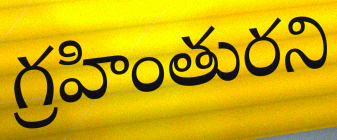
గ్రహింతురని